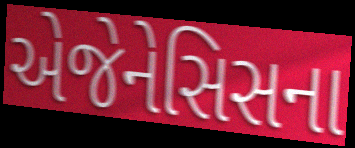
એજેનેસિસના